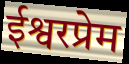
ईश्वरप्रेम